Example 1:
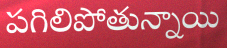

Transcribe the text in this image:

పగిలిపోతున్నాయి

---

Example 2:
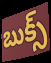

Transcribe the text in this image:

బుక్స్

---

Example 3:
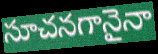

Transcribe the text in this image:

సూచనగానైనా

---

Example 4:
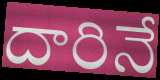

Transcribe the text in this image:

దారినే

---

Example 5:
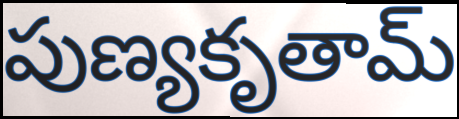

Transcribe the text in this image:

పుణ్యకృతామ్